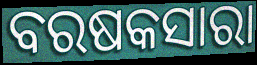
ବରଷକସାରା